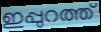
ഇപ്പുറത്ത്